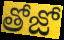
తోజో